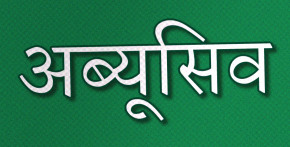
अब्यूसिव